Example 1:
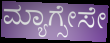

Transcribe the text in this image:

ಮ್ಯಾಗ್ಸೇಸೇ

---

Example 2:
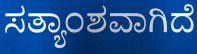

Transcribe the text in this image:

ಸತ್ಯಾಂಶವಾಗಿದೆ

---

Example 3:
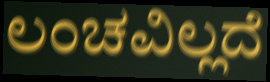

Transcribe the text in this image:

ಲಂಚವಿಲ್ಲದೆ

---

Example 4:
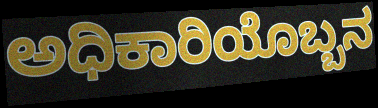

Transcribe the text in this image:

ಅಧಿಕಾರಿಯೊಬ್ಬನ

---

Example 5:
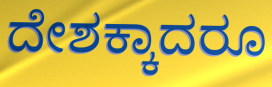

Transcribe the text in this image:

ದೇಶಕ್ಕಾದರೂ